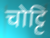
चोट्टि